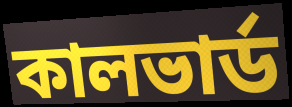
কালভার্ড